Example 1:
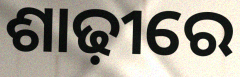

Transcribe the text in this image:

ଶାଢ଼ୀରେ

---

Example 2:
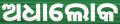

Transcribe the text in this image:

ଅଧାଲୋକ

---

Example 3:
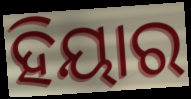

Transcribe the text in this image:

ହିୟାର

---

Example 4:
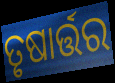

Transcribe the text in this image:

ତୃଷାର୍ତ୍ତର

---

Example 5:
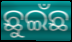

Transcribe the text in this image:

ଛୁଇଁଛ